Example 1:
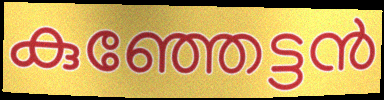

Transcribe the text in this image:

കുഞ്ഞേട്ടൻ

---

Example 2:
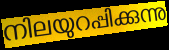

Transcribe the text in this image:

നിലയുറപ്പിക്കുന്നു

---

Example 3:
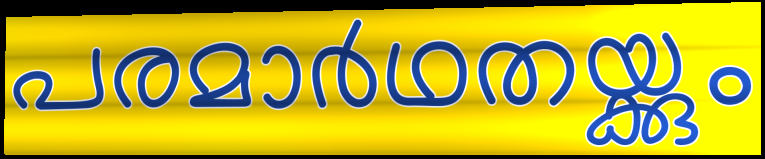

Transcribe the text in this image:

പരമാർഥതയ്ക്കും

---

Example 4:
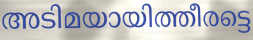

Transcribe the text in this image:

അടിമയായിത്തീരട്ടെ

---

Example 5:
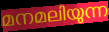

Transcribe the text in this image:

മനമലിയുന്ന